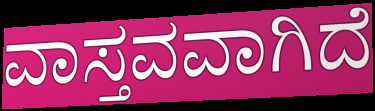
ವಾಸ್ತವವಾಗಿದೆ